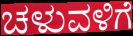
ಚಳುವಳಿಗೆ